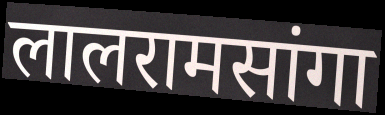
लालरामसांगा